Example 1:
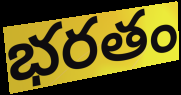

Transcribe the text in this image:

భరతం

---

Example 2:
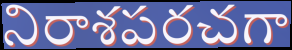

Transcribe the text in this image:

నిరాశపరచగా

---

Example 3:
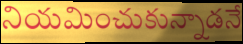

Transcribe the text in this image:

నియమించుకున్నాడనే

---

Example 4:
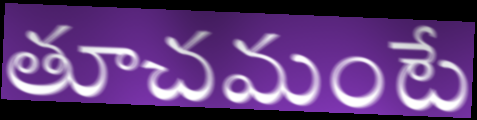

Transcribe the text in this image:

తూచమంటే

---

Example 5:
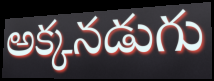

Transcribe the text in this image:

అక్కనడుగు